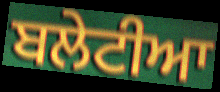
ਬਲੇਟੀਆ